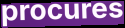
procures